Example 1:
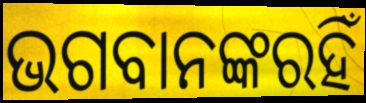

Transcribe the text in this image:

ଭଗବାନଙ୍କରହିଁ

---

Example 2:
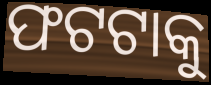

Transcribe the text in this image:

ଫଟଟାକୁ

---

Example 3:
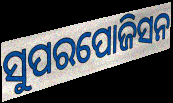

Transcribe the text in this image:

ସୁପରପୋଜିସନ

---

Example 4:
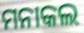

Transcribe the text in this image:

ମନାକଲ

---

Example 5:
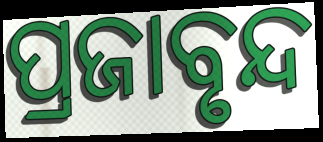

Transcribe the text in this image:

ପ୍ରଜାବୃନ୍ଦ